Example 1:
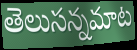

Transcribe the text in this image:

తెలుసన్నమాట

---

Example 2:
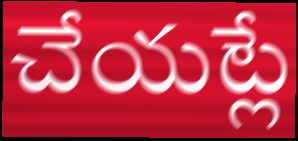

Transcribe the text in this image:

చేయట్లే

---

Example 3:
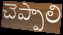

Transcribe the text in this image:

చెప్పాలి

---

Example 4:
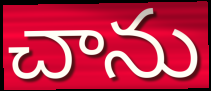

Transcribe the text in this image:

చాను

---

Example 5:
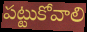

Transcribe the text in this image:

పట్టుకోవాలి